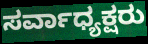
ಸರ್ವಾಧ್ಯಕ್ಷರು